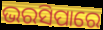
ଭରସିପାରେ